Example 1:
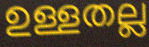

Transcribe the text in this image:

ഉള്ളതല്ല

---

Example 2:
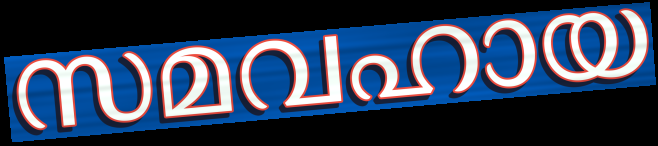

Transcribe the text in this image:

സമവഹായ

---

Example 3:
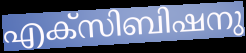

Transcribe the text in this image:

എക്സിബിഷനു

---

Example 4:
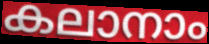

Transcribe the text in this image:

കലാനാം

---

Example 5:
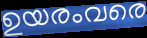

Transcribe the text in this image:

ഉയരംവരെ